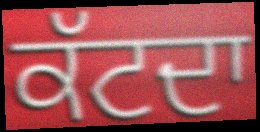
ਕੱਟਦਾ